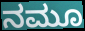
ನಮೂ